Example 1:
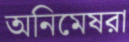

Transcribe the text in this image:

অনিমেষরা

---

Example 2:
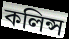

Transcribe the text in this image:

কলিন্স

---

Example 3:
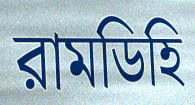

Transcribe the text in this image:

রামডিহি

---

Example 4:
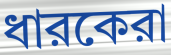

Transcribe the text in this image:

ধারকেরা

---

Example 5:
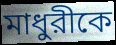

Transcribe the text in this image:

মাধুরীকে